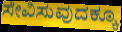
ಸೇವಿಸುವುದಕ್ಕೂ